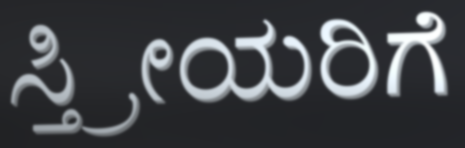
ಸ್ತ್ರೀಯರಿಗೆ